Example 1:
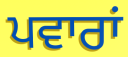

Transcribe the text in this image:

ਪਵਾਰਾਂ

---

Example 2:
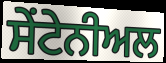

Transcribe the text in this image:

ਸੇਂਟੇਨੀਅਲ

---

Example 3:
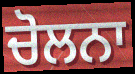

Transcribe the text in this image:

ਚੋਲਨਾ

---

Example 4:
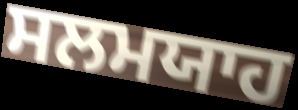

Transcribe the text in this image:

ਸਲਮਯਾਹ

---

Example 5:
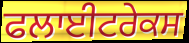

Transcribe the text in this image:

ਫਲਾਈਟਰੇਕਸ